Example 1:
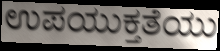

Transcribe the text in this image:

ಉಪಯುಕ್ತತೆಯು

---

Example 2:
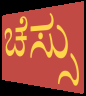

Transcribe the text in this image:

ಚೆಸ್ಸು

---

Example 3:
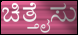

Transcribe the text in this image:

ಚಿತ್ತೈಸು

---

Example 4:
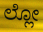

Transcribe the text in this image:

ಲ್ಲೋ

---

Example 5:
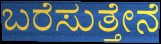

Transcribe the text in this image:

ಬರೆಸುತ್ತೇನೆ